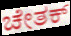
ಚೇತಕ್